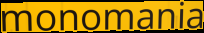
monomania